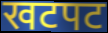
खटपट